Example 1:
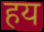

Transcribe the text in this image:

हय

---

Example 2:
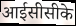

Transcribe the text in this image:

आईसीसीके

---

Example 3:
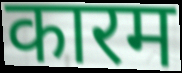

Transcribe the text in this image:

कारम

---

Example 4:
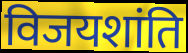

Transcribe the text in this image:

विजयशांति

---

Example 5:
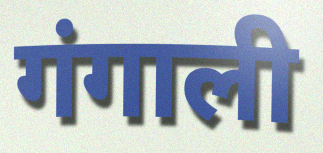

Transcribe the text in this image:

गंगाली